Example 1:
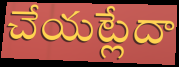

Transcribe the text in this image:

చేయట్లేదా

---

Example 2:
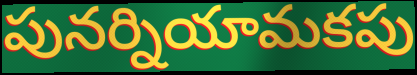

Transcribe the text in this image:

పునర్నియామకపు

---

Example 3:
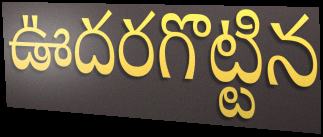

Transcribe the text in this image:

ఊదరగొట్టిన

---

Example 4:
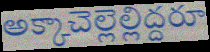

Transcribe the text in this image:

అక్కాచెల్లెల్లిద్దరూ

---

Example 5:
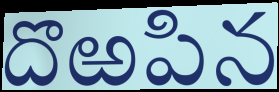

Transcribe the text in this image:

దొఱపిన